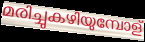
മരിച്ചുകഴിയുമ്പോള്